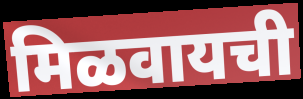
मिळवायची